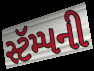
સ્ટૅમ્પની